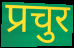
प्रचुर